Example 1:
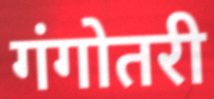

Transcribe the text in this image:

गंगोतरी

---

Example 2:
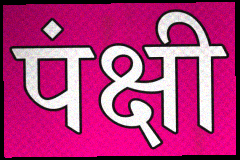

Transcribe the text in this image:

पंक्षी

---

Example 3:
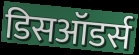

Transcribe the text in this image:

डिसऑडर्स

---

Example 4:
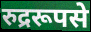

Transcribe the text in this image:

रुद्ररूपसे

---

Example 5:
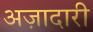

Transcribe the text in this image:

अज़ादारी